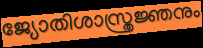
ജ്യോതിശാസ്ത്രജ്ഞനും